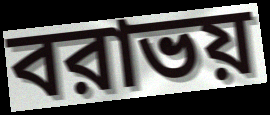
বরাভয়